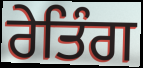
ਰੇਤਿੰਗ